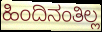
ಹಿಂದಿನಂತಿಲ್ಲ